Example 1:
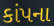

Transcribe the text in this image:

કાંપના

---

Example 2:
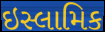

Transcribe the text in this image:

ઇસ્લામિક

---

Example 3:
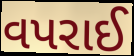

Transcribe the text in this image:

વપરાઈ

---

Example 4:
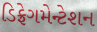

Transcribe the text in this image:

ડિફ્રેગમેન્ટેશન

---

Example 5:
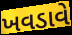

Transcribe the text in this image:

ખવડાવે